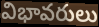
విభావరులు